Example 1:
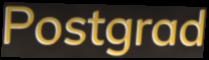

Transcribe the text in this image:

Postgrad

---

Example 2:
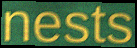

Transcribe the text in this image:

nests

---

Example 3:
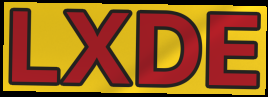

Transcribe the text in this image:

LXDE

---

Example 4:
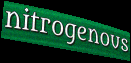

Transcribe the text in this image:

nitrogenous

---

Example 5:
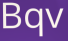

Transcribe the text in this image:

Bqv